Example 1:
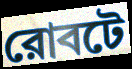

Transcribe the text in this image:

রোবটে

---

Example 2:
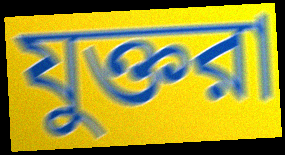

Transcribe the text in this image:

যুক্তরা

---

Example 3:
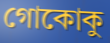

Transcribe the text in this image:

গোকোকু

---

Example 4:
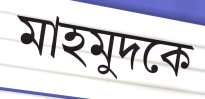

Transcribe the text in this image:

মাহমুদকে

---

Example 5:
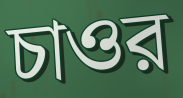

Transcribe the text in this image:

চাওর